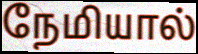
நேமியால்